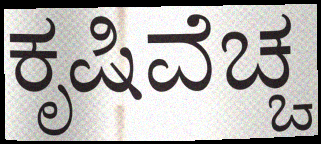
ಕೃಷಿವೆಚ್ಚ